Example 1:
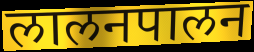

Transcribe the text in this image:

लालनपालन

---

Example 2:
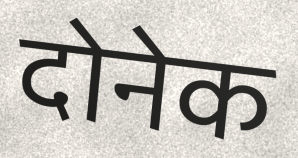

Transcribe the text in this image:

दोनेक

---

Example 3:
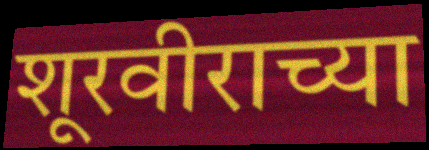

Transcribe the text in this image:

शूरवीराच्या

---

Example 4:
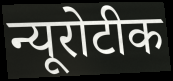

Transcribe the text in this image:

न्यूरोटीक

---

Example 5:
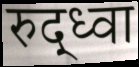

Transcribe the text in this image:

रुद्ध्वा